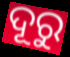
ଦୂରୁ